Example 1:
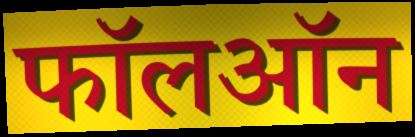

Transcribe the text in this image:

फॉलऑन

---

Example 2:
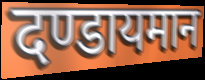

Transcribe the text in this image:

दण्डायमान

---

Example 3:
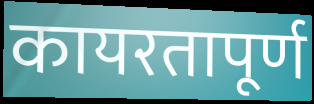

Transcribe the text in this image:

कायरतापूर्ण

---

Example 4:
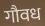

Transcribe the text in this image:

गौवध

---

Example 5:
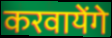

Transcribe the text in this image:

करवायेंगे